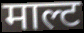
माल्ट